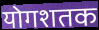
योगशतक